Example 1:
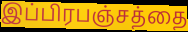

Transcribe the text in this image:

இப்பிரபஞ்சத்தை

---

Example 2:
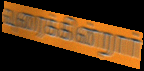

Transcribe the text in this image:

வுரைக்கின்றார்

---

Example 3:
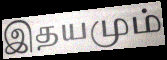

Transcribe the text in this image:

இதயமும்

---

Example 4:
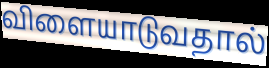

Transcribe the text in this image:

விளையாடுவதால்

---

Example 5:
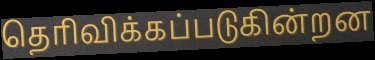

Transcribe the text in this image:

தெரிவிக்கப்படுகின்றன